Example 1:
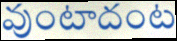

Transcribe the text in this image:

వుంటాదంట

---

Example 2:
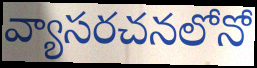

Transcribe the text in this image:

వ్యాసరచనలోనో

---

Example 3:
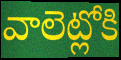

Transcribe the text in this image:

వాలెట్లోకి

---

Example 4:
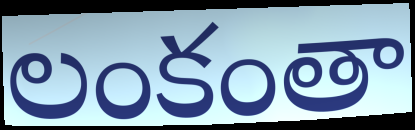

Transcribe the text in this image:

లంకంతా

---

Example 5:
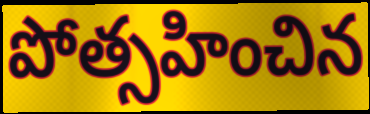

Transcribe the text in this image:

పోత్సహించిన